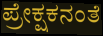
ಪ್ರೇಕ್ಷಕನಂತೆ